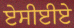
ਏਸੀਈਏ